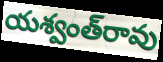
యశ్వంత్‌రావు